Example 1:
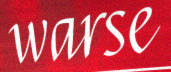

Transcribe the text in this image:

warse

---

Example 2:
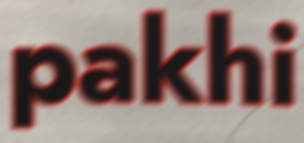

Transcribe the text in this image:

pakhi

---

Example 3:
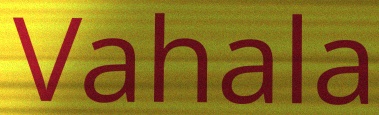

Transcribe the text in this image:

Vahala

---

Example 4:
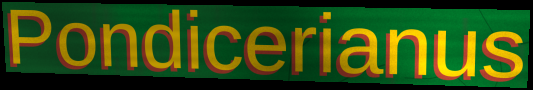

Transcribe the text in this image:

Pondicerianus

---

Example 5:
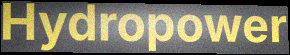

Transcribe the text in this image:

Hydropower